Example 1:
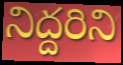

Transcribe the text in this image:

నిద్దరిని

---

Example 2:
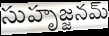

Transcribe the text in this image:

సుహృజ్జనమ్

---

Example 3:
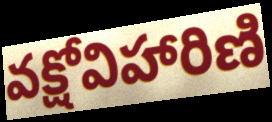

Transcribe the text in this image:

వక్షోవిహారిణి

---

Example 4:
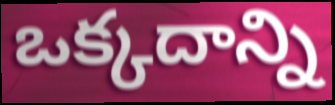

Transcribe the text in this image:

ఒక్కదాన్ని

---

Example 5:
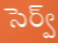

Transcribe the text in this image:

సెర్వ్